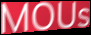
MOUs